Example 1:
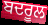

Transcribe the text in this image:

ਬਦਰੂਲ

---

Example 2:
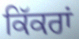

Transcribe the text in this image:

ਕਿੱਕਰਾਂ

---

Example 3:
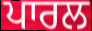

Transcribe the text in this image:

ਪਾਰਲ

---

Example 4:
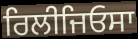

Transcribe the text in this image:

ਰਿਲੀਜਿਓਸਾ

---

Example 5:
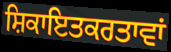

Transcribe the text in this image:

ਸ਼ਿਕਾਇਤਕਰਤਾਵਾਂ